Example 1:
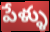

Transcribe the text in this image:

పేళ్ళు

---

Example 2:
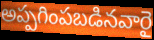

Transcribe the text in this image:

అప్పగింపబడినవారై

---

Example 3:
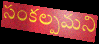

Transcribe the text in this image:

సంకల్పమని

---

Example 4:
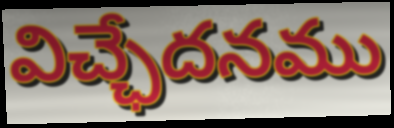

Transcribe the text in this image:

విచ్ఛేదనము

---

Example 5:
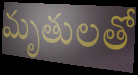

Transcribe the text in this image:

మృతులతో